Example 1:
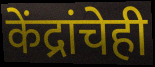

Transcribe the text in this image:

केंद्रांचेही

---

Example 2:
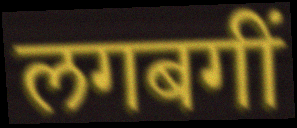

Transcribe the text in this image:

लगबगीं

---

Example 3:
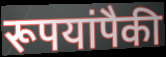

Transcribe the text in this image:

रूपयांपैकी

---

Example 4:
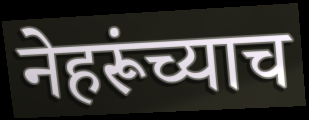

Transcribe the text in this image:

नेहरूंच्याच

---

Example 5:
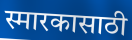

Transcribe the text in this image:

स्मारकासाठी